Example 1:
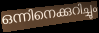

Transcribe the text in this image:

ഒന്നിനെക്കുറിച്ചും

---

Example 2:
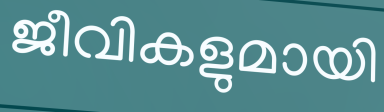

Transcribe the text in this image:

ജീവികളുമായി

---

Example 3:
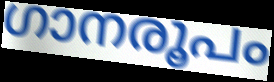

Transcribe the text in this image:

ഗാനരൂപം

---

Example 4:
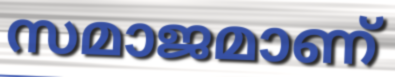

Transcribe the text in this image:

സമാജമാണ്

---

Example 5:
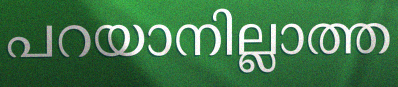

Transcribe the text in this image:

പറയാനില്ലാത്ത